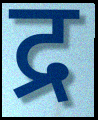
द्र